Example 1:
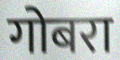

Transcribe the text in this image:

गोबरा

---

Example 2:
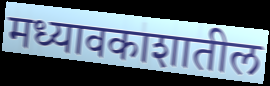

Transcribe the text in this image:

मध्यावकाशातील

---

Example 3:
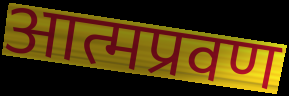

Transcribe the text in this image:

आत्मप्रवण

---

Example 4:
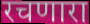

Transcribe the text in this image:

रचणारा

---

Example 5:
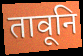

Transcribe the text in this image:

तावूनि